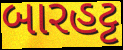
બારહટ્ટ